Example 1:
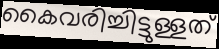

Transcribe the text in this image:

കൈവരിച്ചിട്ടുള്ളത്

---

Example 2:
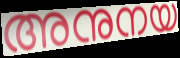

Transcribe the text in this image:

അനുനയ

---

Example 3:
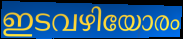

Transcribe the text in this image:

ഇടവഴിയോരം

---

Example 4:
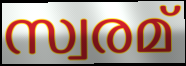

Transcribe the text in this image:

സ്വരമ്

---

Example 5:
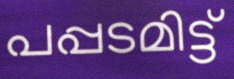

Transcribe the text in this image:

പപ്പടമിട്ട്